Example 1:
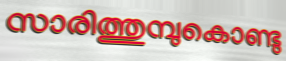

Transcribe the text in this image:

സാരിത്തുമ്പുകൊണ്ടു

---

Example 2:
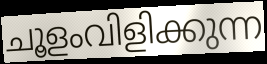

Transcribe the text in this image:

ചൂളംവിളിക്കുന്ന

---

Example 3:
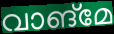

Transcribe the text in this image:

വാങ്മേ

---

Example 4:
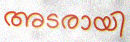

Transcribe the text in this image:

അടരായി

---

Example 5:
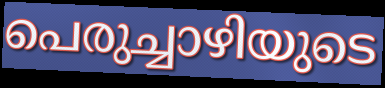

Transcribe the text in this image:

പെരുച്ചാഴിയുടെ